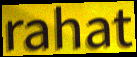
rahat